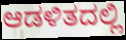
ಆಡಳಿತದಲ್ಲಿ